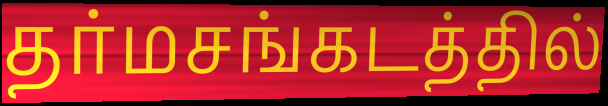
தர்மசங்கடத்தில்